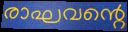
രാഘവന്റെ